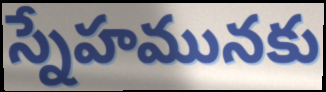
స్నేహమునకు